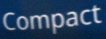
Compact